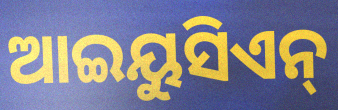
ଆଇୟୁସିଏନ୍